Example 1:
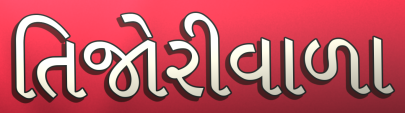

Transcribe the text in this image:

તિજોરીવાળા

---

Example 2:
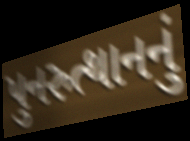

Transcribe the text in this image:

પુનરુત્થાનનું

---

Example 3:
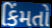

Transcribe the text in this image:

કિંમતો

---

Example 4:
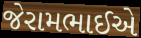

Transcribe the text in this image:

જેરામભાઈએ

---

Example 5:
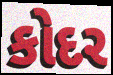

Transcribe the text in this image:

કોદર